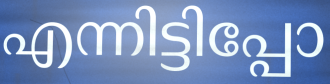
എന്നിട്ടിപ്പോ